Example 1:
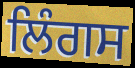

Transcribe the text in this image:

ਲਿੰਗਸ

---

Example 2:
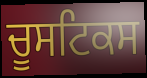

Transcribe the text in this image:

ਚੂਸਟਿਕਸ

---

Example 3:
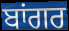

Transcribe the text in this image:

ਬਾਂਗਰ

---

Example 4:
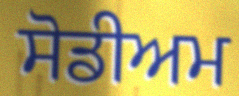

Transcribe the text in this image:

ਸੋਡੀਅਮ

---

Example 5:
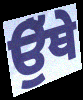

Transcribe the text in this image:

ਉੁੱਥੇ